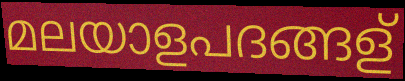
മലയാളപദങ്ങള്